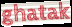
ghatak